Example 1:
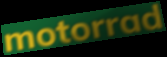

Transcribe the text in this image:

motorrad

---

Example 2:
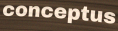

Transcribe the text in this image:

conceptus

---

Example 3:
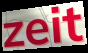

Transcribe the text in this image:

zeit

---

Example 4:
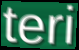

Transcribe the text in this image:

teri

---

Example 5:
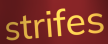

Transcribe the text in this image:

strifes